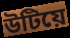
উটিয়ে